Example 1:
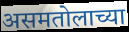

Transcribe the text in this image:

असमतोलाच्या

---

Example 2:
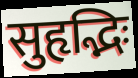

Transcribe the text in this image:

सुहृद्भिः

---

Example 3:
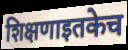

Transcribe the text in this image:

शिक्षणाइतकेच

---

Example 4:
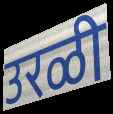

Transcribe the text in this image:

उरळी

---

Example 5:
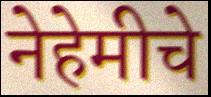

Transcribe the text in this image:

नेहेमीचे